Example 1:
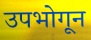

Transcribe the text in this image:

उपभोगून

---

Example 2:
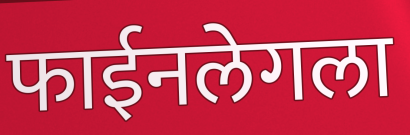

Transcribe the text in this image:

फाईनलेगला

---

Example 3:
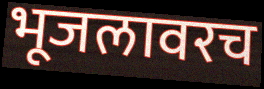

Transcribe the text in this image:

भूजलावरच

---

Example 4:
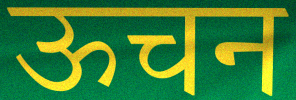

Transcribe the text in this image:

ऊचन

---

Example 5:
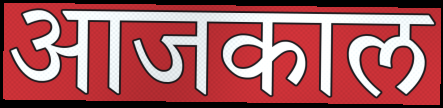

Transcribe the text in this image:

आजकाल